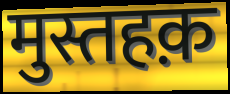
मुस्तहक़